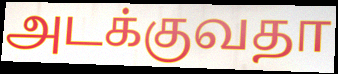
அடக்குவதா